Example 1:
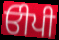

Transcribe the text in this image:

ਓੀਪੀ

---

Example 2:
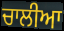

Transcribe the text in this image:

ਚਾਲੀਆ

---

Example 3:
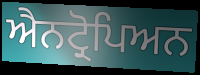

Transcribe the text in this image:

ਐਨਟ੍ਰੋਪਿਅਨ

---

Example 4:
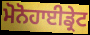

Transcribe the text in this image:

ਮੋਨੋਹਾਈਡ੍ਰੇਟ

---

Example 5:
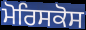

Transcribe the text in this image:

ਮੋਰਿਸਕੋਸ